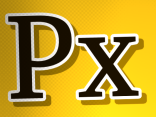
Px